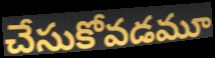
చేసుకోవడమూ